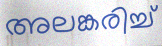
അലങ്കരിച്ച്